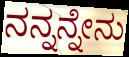
ನನ್ನನ್ನೇನು